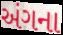
અંગના